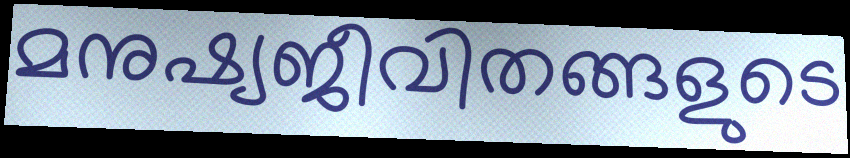
മനുഷ്യജീവിതങ്ങളുടെ